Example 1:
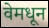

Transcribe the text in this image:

वेमधून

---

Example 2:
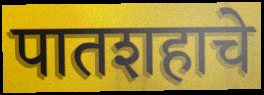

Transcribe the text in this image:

पातशहाचे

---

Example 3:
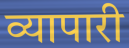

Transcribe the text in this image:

व्यापारी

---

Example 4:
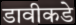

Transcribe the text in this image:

डावीकडे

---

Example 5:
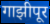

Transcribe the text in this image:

गाझीपूर